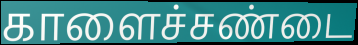
காளைச்சண்டை